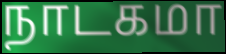
நாடகமா